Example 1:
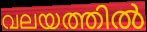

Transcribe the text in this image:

വലയത്തിൽ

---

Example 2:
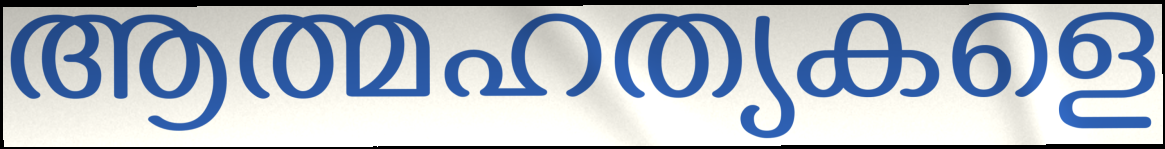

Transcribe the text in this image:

ആത്മഹത്യകളെ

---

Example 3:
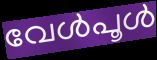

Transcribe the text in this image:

വേൾപൂൾ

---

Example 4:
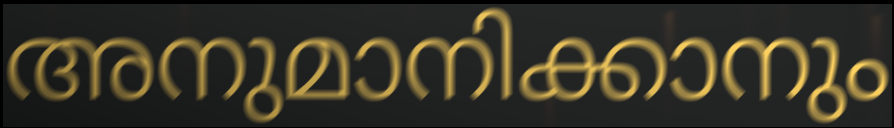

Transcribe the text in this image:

അനുമാനിക്കാനും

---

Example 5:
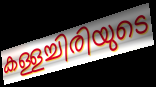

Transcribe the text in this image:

കള്ളച്ചിരിയുടെ